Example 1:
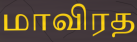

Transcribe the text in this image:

மாவிரத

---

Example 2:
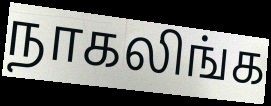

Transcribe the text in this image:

நாகலிங்க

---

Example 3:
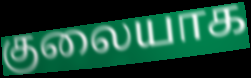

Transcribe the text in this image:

குலையாக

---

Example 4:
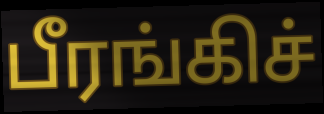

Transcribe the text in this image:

பீரங்கிச்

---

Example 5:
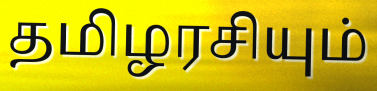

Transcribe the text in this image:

தமிழரசியும்